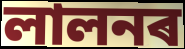
লালনৰ